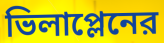
ভিলাপ্লেনের